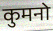
कुमनो